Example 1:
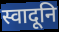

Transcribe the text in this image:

स्वादूनि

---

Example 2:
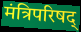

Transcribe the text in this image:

मंत्रिपरिषद्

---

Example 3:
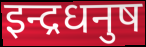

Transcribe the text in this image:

इन्‍द्रधनुष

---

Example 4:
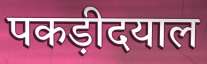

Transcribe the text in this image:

पकड़ीदयाल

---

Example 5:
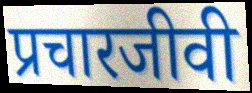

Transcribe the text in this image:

प्रचारजीवी